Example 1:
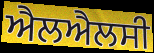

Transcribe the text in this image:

ਐਲਐਲਸੀ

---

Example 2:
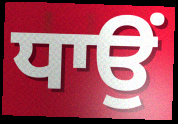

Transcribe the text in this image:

ਧਾਉਂ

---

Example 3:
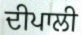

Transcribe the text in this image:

ਦੀਪਾਲੀ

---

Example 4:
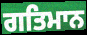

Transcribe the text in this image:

ਗਤਿਮਾਨ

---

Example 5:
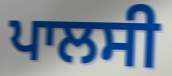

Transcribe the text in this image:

ਪਾਲਸੀ